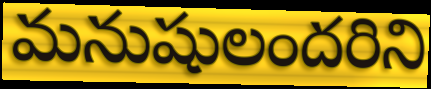
మనుషులందరిని